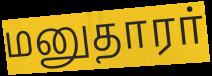
மனுதாரர்